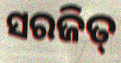
ସରଜିତ୍